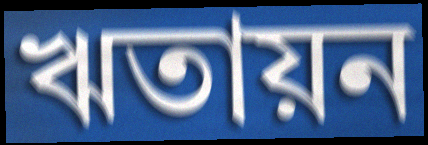
ঋতায়ন